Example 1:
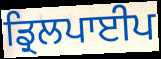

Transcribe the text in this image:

ਡ੍ਰਿਲਪਾਈਪ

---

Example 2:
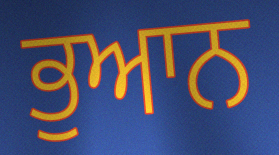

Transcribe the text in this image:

ਭੁਆਨ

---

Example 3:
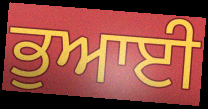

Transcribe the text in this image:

ਭੁਆਈ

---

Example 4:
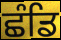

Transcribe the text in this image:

ਛੰਡਿ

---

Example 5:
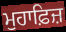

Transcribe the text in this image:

ਮੁਹਾਫ਼ਿਜ਼